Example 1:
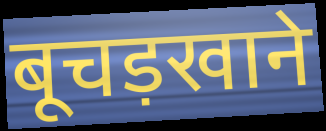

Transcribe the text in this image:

बूचड़खाने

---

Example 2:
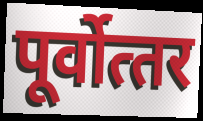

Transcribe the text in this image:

पूर्वोत्‍तर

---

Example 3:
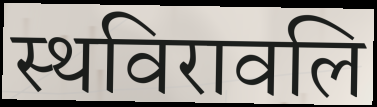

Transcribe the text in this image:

स्थविरावलि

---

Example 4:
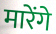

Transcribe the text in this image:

मारेंगे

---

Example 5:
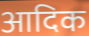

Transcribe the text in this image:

आदिक